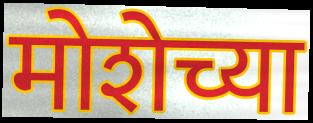
मोशेच्या